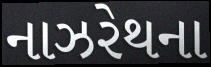
નાઝરેથના